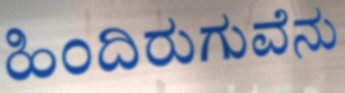
ಹಿಂದಿರುಗುವೆನು